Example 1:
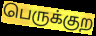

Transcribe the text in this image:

பெருக்குற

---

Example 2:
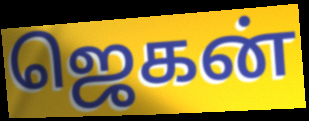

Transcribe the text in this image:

ஜெகன்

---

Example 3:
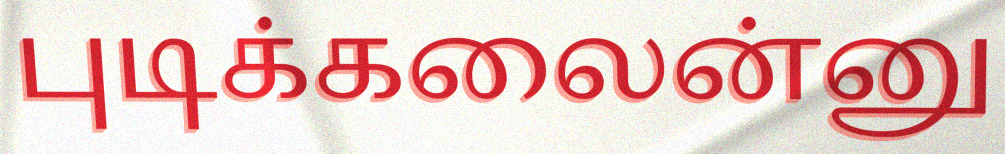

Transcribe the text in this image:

புடிக்கலைன்னு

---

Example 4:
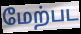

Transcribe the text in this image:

மேற்பட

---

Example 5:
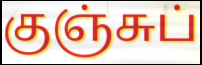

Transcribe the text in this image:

குஞ்சுப்